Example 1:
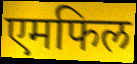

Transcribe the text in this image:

एमफिल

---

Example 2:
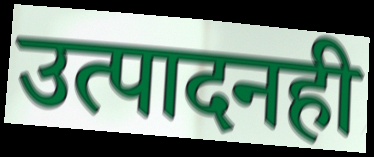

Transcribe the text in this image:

उत्पादनही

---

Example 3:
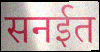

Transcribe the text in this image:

सनईत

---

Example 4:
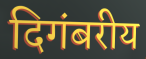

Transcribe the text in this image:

दिगंबरीय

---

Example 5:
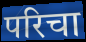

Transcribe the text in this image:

परिचा